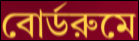
বোর্ডরুমে